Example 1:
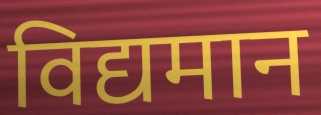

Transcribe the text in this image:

विद्यमान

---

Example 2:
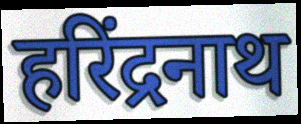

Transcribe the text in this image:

हरिंद्रनाथ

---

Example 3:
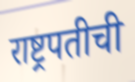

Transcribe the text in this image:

राष्ट्रपतीची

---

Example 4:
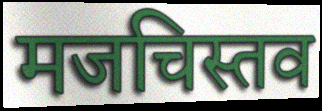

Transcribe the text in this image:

मजचिस्तव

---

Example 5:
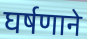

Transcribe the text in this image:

घर्षणाने